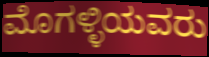
ಮೊಗಳ್ಳಿಯವರು